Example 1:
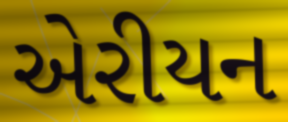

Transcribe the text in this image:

એરીયન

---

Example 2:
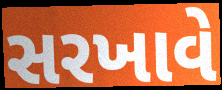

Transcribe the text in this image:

સરખાવે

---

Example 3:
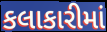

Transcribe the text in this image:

કલાકારીમાં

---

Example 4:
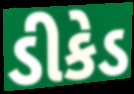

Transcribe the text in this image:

ડીકેડ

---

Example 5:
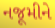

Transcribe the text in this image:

નજૂમીને